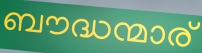
ബൗദ്ധന്മാര്